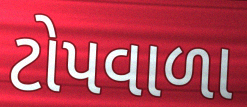
ટોપવાળા